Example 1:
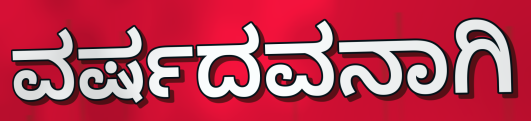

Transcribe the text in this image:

ವರ್ಷದವನಾಗಿ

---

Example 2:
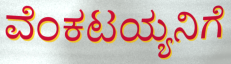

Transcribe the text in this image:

ವೆಂಕಟಯ್ಯನಿಗೆ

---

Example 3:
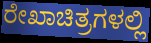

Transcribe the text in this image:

ರೇಖಾಚಿತ್ರಗಳಲ್ಲಿ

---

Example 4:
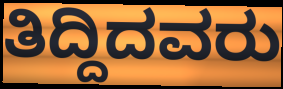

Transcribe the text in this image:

ತಿದ್ದಿದವರು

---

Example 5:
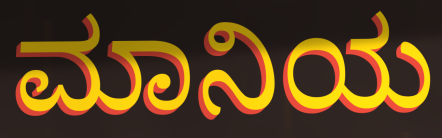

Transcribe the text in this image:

ಮಾನಿಯ